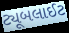
ટ્યૂબલાઈટ